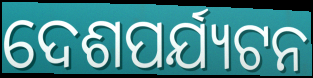
ଦେଶପର୍ଯ୍ୟଟନ